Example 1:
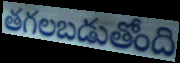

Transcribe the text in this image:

తగలబడుతోంది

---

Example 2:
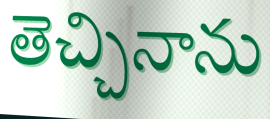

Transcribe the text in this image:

తెచ్చినాను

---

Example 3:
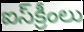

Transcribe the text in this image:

ఐస్‌క్రీంలు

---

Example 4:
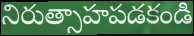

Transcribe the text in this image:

నిరుత్సాహపడకండి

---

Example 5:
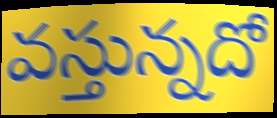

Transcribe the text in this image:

వస్తున్నదో